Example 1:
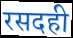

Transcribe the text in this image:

रसदही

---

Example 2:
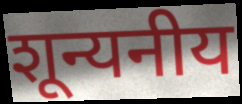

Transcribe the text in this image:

शून्यनीय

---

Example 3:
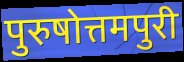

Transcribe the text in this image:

पुरुषोत्तमपुरी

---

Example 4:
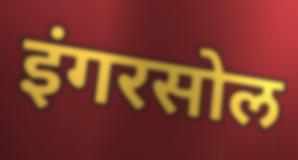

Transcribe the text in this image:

इंगरसोल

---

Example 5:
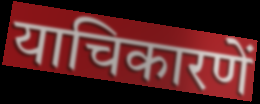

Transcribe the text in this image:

याचिकारणें